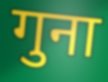
गुना